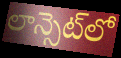
లాన్సెట్‌లో